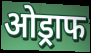
ओड्राफ